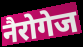
नैरोगेज